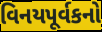
વિનયપૂર્વકનો